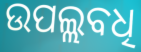
ଉପଲ୍ଲବଧି